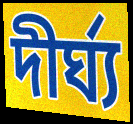
দীর্ঘ্য